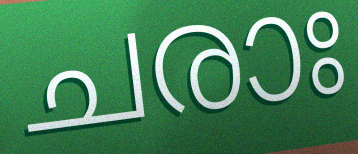
ചരാഃ